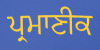
ਪ੍ਰਮਾਣੀਕ